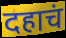
दहाचं